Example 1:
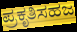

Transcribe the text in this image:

ಪ್ರಕೃತಿಸಹಜ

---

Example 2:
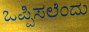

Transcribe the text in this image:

ಒಪ್ಪಿಸಲೆಂದು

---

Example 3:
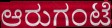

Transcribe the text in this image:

ಆರುಗಂಟೆ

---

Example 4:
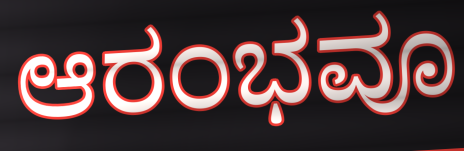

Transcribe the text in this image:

ಆರಂಭವೂ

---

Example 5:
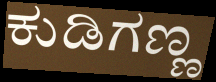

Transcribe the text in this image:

ಕುಡಿಗಣ್ಣ